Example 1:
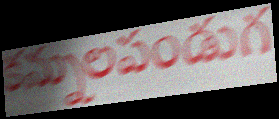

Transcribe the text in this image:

కన్నులపండుగ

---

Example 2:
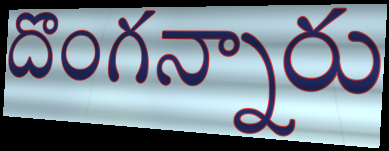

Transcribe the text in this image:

దొంగన్నారు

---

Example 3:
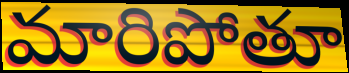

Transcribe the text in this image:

మారిపోతూ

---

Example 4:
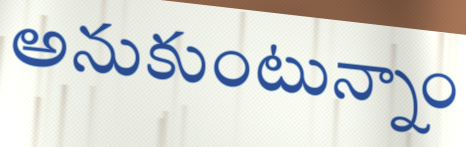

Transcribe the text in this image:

అనుకుంటున్నాం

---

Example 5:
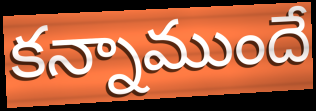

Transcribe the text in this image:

కన్నాముందే